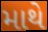
માથે